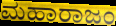
ಮಹಾರಾಜಂ